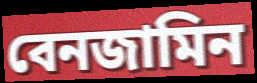
বেনজামিন